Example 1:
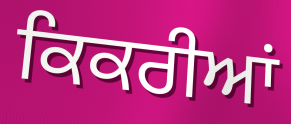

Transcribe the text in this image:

ਕਿਕਰੀਆਂ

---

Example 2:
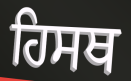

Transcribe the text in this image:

ਹਿਸਥ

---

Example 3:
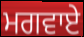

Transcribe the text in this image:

ਮਗਵਾਏ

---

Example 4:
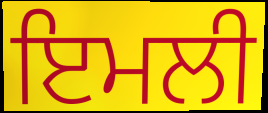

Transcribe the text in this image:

ਇਮਲੀ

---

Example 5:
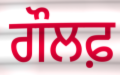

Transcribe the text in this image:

ਗੌਲਫ਼